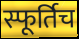
स्फूर्तिच